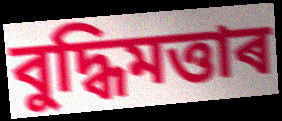
বুদ্ধিমত্তাৰ